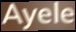
Ayele